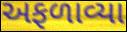
અફળાવ્યા